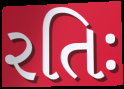
રતિઃ